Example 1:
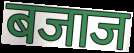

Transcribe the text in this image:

बजाज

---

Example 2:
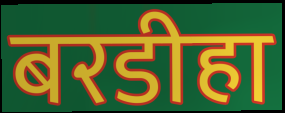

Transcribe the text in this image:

बरडीहा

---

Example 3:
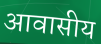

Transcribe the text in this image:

आवासीय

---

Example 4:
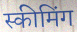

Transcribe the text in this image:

स्कीमिंग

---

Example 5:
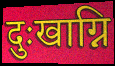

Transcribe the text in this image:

दुःखाग्नि